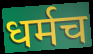
धर्मच